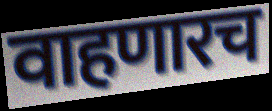
वाहणारच